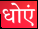
धोएं